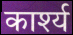
कार्श्य